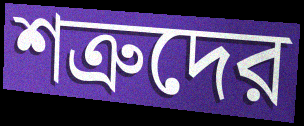
শত্রুদের